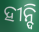
ହୀନ୍ଦି